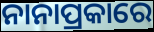
ନାନାପ୍ରକାରେ